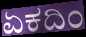
ಏಕದಿಂ